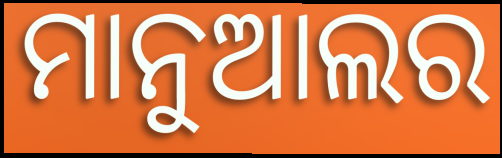
ମାନୁଆଲର